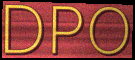
DPO